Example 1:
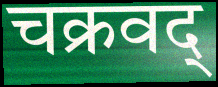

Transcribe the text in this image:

चक्रवद्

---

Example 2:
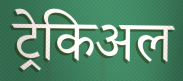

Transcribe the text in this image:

ट्रेकिअल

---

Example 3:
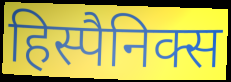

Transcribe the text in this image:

हिस्पैनिक्स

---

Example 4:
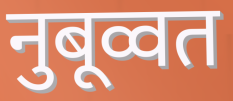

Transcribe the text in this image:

नुबूव्वत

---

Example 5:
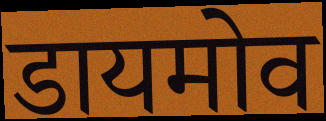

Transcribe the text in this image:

डायमोव